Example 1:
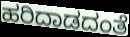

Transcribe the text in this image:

ಹರಿದಾಡದಂತೆ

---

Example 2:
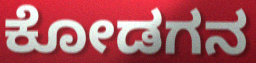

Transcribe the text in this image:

ಕೋಡಗನ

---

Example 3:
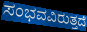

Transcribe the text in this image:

ಸಂಭವವಿರುತ್ತದೆ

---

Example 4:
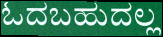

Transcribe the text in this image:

ಓದಬಹುದಲ್ಲ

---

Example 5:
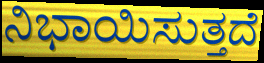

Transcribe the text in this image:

ನಿಭಾಯಿಸುತ್ತದೆ